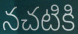
నచటికి